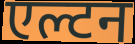
एल्टन